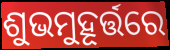
ଶୁଭମୁହୂର୍ତ୍ତରେ